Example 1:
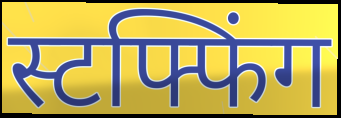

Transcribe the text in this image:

स्टफ्फिंग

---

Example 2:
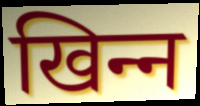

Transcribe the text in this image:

खिन्‍न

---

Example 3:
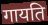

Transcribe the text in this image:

गायति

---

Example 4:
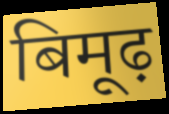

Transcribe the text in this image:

बिमूढ़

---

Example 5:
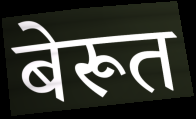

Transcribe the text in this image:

बेरूत